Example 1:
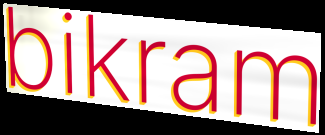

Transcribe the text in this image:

bikram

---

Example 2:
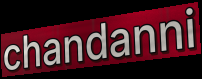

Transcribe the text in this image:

chandanni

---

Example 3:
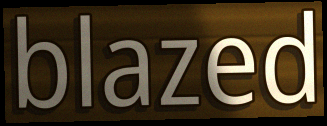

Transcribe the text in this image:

blazed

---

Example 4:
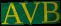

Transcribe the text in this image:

AVB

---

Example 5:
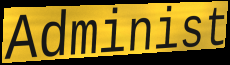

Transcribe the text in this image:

Administ